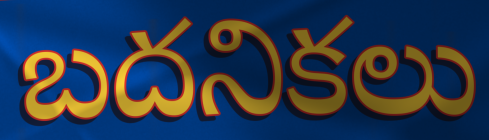
బదనికలు